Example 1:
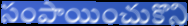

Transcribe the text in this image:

సంపాయించుకొని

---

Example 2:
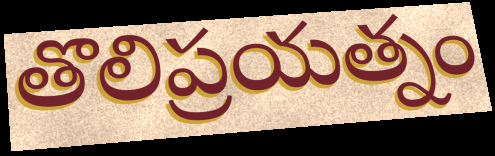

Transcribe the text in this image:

తొలిప్రయత్నం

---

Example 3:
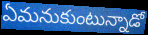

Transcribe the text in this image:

ఏమనుకుంటున్నాడో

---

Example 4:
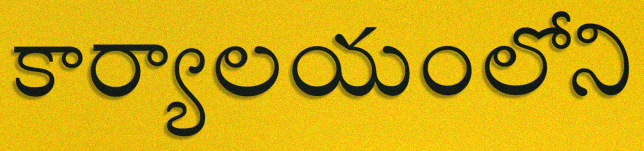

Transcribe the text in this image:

కార్యాలయంలోని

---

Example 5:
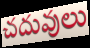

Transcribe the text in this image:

చదువులు